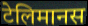
टेलिमानस